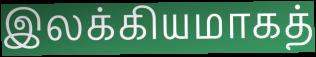
இலக்கியமாகத்